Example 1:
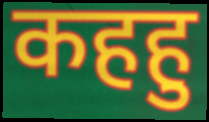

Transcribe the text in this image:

कहहु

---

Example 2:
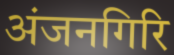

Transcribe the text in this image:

अंजनगिरि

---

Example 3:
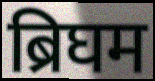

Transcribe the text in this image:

ब्रिघम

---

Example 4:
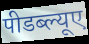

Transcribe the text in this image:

पीडब्ल्यूए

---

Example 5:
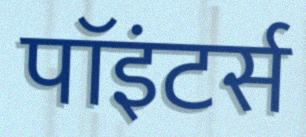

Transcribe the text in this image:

पॉइंटर्स